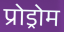
प्रोड्रोम